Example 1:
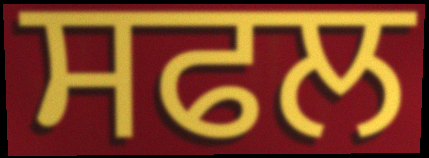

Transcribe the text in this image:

ਸਫਲ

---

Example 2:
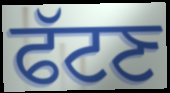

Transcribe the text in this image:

ਫੱਟਣ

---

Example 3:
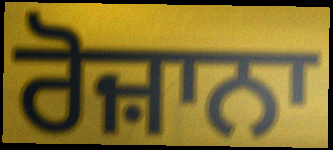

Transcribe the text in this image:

ਰੋਜ਼ਾਨਾ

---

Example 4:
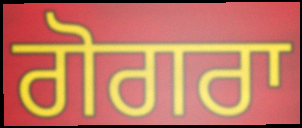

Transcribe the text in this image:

ਗੋਗਰਾ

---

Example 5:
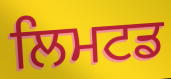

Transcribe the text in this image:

ਲਿਮਟਡ